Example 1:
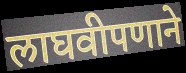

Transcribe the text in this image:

लाघवीपणाने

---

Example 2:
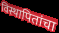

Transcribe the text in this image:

विस्थापितांचा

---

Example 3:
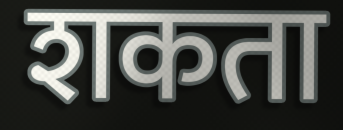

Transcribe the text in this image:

शकता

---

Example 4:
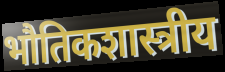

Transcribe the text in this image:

भौतिकशास्त्रीय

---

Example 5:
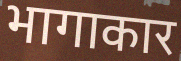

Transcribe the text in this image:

भागाकार